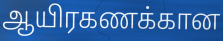
ஆயிரகணக்கான